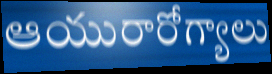
ఆయురారోగ్యాలు